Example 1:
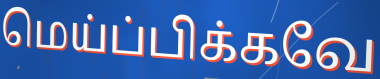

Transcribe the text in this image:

மெய்ப்பிக்கவே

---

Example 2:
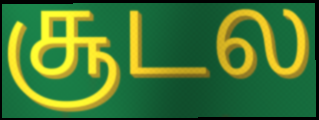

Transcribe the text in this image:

சூடல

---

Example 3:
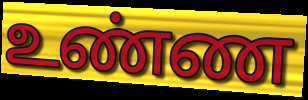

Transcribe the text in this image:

உண்ண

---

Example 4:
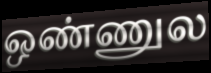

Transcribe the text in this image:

ஒண்ணுல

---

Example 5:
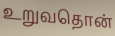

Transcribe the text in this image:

உறுவதொன்